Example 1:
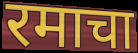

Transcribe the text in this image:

रमाचा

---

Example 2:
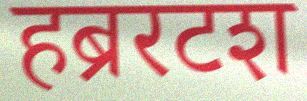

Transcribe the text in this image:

हब्ररटश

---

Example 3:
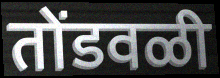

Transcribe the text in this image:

तोंडवळी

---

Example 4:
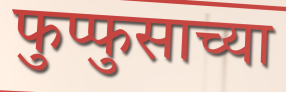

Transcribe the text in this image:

फुप्फुसाच्या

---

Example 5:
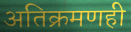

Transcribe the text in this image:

अतिक्रमणही